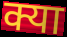
क्या